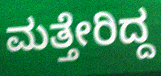
ಮತ್ತೇರಿದ್ದ